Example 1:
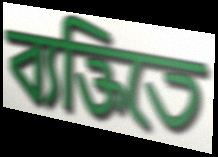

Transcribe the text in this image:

ব্যক্তিতে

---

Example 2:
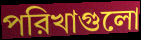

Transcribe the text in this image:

পরিখাগুলো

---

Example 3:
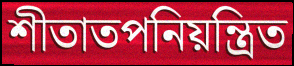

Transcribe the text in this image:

শীতাতপনিয়ন্ত্রিত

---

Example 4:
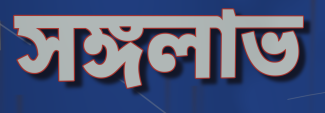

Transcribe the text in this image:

সঙ্গলাভ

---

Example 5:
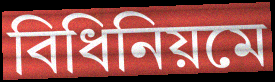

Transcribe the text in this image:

বিধিনিয়মে